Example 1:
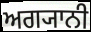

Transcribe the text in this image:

ਅਗ੍ਯਾਨੀ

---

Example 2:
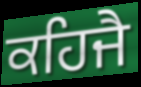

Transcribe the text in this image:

ਕਹਿਜੈ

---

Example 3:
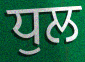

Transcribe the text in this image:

ਧੁਲ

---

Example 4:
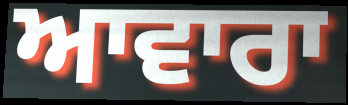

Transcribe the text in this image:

ਆਵਾਰਾ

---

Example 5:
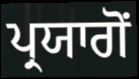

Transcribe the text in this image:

ਪ੍ਰਯਾਗੋਂ